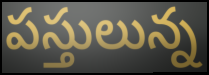
పస్తులున్న